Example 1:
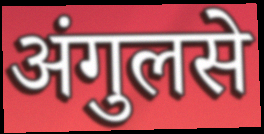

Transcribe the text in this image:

अंगुलसे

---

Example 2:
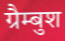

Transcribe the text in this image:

ग्रैम्बुश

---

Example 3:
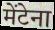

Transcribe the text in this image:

मेंटेना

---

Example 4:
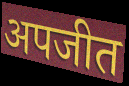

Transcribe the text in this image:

अपजीत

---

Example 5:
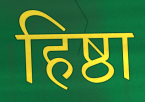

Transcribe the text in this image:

हिष्ठा